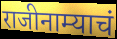
राजीनाम्याचं